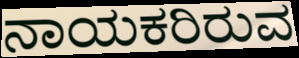
ನಾಯಕರಿರುವ